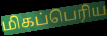
மிகப்பெரிய